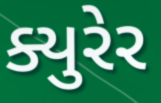
ક્યુરેર